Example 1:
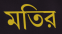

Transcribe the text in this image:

মতির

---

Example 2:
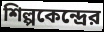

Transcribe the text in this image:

শিল্পকেন্দ্রের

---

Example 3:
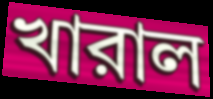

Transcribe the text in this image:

খারাল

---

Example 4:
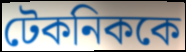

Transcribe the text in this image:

টেকনিককে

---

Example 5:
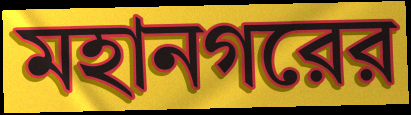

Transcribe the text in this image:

মহানগরের